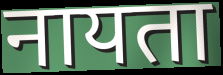
नायता